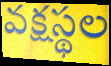
వక్షస్థల